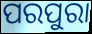
ପରପୁରା